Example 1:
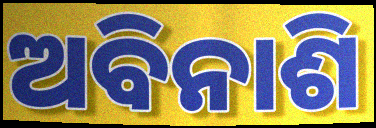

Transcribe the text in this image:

ଅବିନାଶି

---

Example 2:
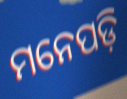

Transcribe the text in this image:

ମନେପଡ଼ି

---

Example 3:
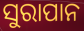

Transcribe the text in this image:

ସୁରାପାନ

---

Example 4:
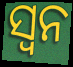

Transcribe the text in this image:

ସ୍ୱନ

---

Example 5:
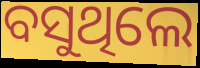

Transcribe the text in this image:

ବସୁଥିଲେ